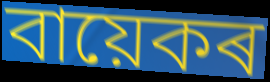
বায়েকৰ